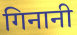
गिनानी